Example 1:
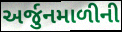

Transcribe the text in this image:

અર્જુનમાળીની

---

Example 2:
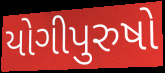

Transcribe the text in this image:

યોગીપુરુષો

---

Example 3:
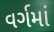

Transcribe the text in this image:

વર્ગમાં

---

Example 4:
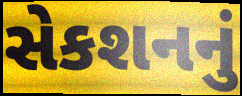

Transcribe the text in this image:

સેકશનનું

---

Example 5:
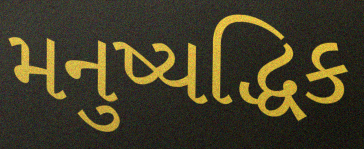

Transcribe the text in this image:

મનુષ્યદ્ધિક